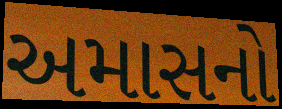
અમાસનો